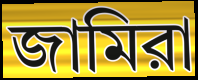
জামিরা